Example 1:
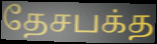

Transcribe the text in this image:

தேசபக்த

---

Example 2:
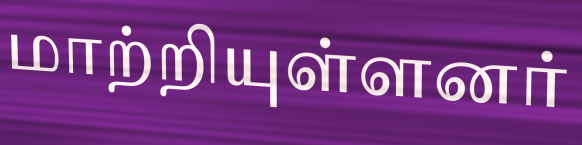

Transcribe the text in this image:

மாற்றியுள்ளனர்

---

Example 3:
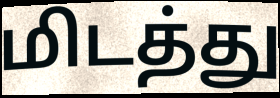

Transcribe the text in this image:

மிடத்து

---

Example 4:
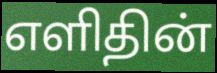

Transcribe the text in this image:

எளிதின்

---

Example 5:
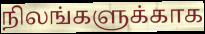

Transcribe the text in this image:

நிலங்களுக்காக